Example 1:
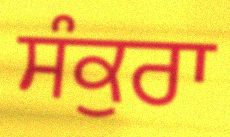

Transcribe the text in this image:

ਸੰਕੁਰਾ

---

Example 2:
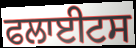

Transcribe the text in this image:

ਫਲਾਈਟਸ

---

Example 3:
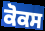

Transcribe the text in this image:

ਕੋਕਸ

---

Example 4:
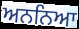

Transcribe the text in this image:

ਅਨਨਿਆ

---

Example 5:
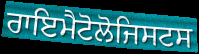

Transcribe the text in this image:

ਰਾਇਮੈਟੋਲੋਜਿਸਟਸ